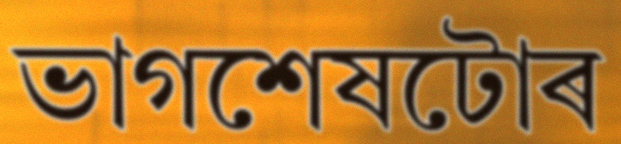
ভাগশেষটোৰ